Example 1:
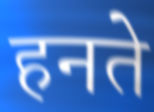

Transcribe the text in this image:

हनते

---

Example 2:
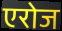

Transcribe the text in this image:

एरोज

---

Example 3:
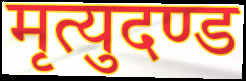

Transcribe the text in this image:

मृत्युदण्ड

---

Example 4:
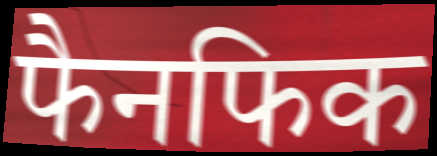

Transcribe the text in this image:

फैनफिक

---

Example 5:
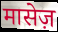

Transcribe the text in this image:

मासेज़